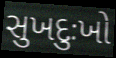
સુખદુઃખો